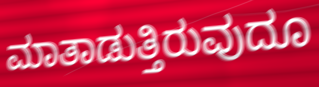
ಮಾತಾಡುತ್ತಿರುವುದೂ